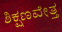
ಶಿಕ್ಷಣವೇತ್ತ